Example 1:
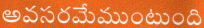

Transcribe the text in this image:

అవసరమేముంటుంది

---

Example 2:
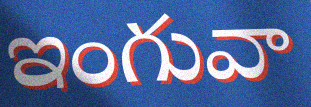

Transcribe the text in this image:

ఇంగువా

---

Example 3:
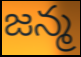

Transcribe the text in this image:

జన్మ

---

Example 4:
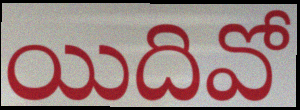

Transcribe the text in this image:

యిదివో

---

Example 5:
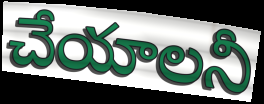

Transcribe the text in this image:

చేయాలనీ